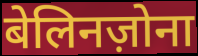
बेलिनज़ोना